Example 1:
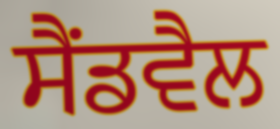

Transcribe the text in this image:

ਸੈਂਡਵੈਲ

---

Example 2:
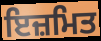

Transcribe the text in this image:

ਇਜ਼ਮਿਤ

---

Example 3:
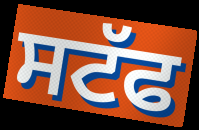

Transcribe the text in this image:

ਸਟੱਫ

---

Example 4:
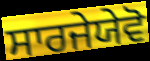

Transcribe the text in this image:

ਸਾਰਜੇਯੇਵੋ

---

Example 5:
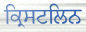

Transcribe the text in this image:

ਕ੍ਰਿਸਟਲਿਨ